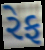
રેફ